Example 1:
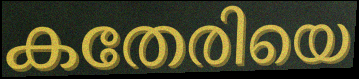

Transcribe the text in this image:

കതേരിയെ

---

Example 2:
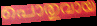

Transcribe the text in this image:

പൊതുവായ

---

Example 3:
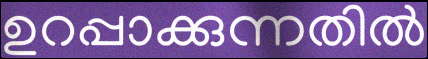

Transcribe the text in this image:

ഉറപ്പാക്കുന്നതിൽ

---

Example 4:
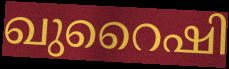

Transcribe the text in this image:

ഖുറൈഷി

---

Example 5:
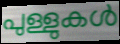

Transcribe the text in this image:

പുള്ളുകൾ